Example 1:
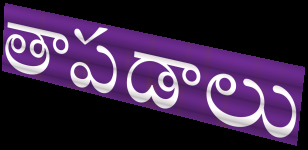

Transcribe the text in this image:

తాపడాలు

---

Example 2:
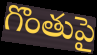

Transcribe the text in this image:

గొంతుపై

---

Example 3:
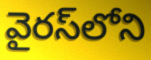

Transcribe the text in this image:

వైరస్‌లోని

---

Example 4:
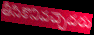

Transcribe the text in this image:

తీసికొనివచ్చెదరు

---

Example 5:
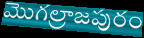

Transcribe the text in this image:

మొగల్రాజపురం